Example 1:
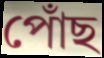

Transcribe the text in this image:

পোঁছ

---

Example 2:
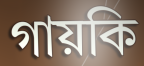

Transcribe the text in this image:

গায়কি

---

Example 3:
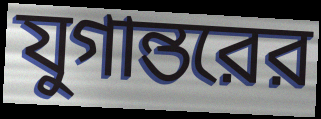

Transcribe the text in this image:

যুগান্তরের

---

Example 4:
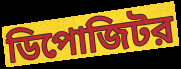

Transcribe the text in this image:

ডিপোজিটর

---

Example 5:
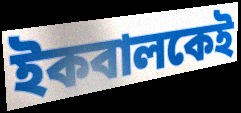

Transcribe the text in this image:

ইকবালকেই